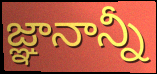
జ్ఞానాన్నీ